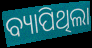
ବ୍ୟାପିଥିଲା